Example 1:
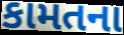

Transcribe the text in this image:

કામતના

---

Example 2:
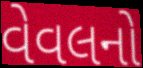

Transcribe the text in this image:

વેવલનો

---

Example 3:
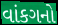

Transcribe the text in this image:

વાંકગનો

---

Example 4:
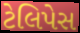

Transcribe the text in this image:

ટેલિપેસ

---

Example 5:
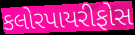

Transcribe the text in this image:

કલોરપાયરીફોસ